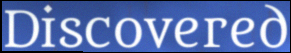
Discovered